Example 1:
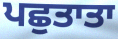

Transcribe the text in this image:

ਪਛੁਤਾਤਾ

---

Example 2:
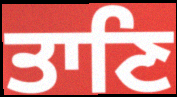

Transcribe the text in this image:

ਤਾਣਿ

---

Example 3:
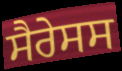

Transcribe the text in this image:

ਸੈਰੇਸਸ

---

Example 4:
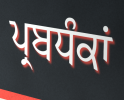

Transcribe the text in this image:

ਪ੍ਰਬਧੰਕਾਂ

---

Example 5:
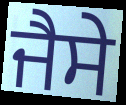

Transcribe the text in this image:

ਜੈਸੇ